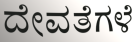
ದೇವತೆಗಳೆ